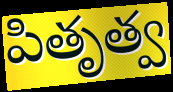
పితృత్వ